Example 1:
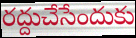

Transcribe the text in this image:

రద్దుచేసేందుకు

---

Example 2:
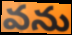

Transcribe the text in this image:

వను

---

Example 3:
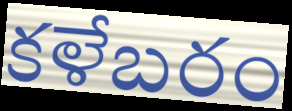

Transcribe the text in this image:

కళేబరం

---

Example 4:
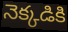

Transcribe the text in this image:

నెక్కడికి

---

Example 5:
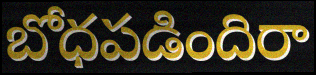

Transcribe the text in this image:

బోధపడిందిరా